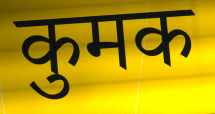
कुमक